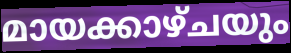
മായക്കാഴ്ചയും